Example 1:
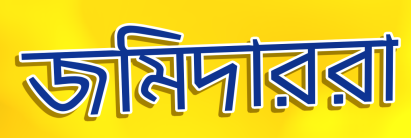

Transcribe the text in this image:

জমিদাররা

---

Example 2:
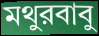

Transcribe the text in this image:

মথুরবাবু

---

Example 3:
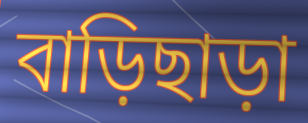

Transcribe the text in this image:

বাড়িছাড়া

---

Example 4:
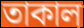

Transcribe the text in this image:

তাকাল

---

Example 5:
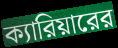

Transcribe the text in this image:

ক্যারিয়ারের